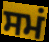
ਸਮਂ